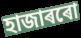
হাজাৰৰো